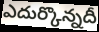
ఎదుర్కొన్నదీ